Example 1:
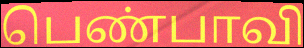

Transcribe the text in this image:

பெண்பாவி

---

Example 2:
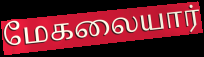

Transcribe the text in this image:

மேகலையார்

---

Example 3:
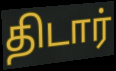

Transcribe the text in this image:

திடார்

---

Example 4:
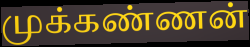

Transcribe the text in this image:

முக்கண்ணன்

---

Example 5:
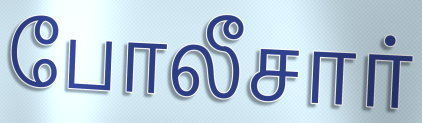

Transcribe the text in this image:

போலீசார்